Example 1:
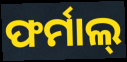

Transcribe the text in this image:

ଫର୍ମାଲ୍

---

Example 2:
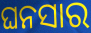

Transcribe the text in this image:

ଘନସାର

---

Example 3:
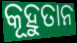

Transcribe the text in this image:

କୂହୁତାନ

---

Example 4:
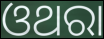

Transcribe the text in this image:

ଓଥରା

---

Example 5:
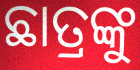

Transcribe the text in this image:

ଛାତ୍ରଙ୍କୁ